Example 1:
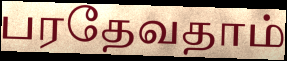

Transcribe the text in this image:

பரதேவதாம்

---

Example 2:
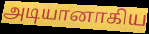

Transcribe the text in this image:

அடியானாகிய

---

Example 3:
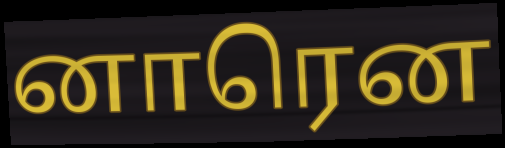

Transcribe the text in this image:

னாரென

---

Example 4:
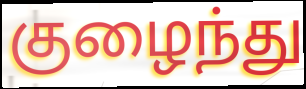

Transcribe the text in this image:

குழைந்து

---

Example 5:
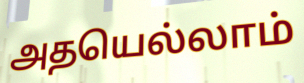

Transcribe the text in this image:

அதயெல்லாம்